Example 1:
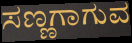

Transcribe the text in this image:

ಸಣ್ಣಗಾಗುವ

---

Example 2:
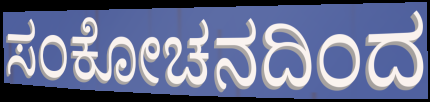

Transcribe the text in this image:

ಸಂಕೋಚನದಿಂದ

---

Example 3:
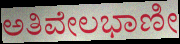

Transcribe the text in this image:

ಅತಿವೇಲಭಾಣೀ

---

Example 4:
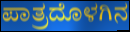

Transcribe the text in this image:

ಪಾತ್ರದೊಳಗಿನ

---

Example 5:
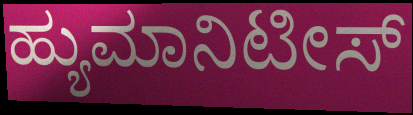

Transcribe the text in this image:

ಹ್ಯುಮಾನಿಟೀಸ್